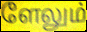
ளேலும்